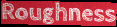
Roughness